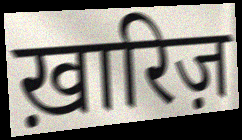
ख़ारिज़